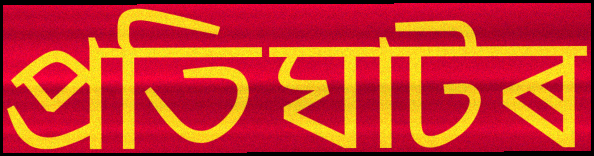
প্ৰতিঘাটৰ